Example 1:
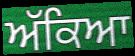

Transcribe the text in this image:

ਅੱਕਿਆ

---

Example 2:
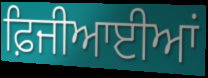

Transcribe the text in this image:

ਫ਼ਿਜੀਆਈਆਂ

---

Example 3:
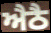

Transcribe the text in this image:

ਐਠੈ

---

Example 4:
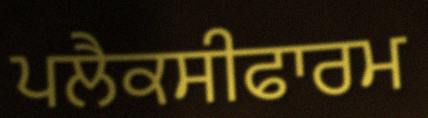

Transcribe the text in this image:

ਪਲੈਕਸੀਫਾਰਮ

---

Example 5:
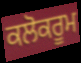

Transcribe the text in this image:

ਕਲੋਕਰੂਮ